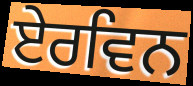
ਏਰਵਿਨ